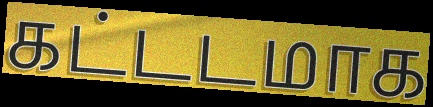
கட்டடமாக